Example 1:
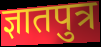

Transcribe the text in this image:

ज्ञातपुत्र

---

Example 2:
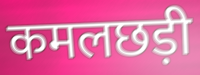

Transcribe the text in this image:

कमलछड़ी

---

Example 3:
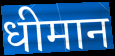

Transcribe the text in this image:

धीमान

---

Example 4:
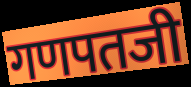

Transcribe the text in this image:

गणपतजी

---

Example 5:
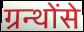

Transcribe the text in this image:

ग्रन्थोंसे